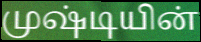
முஷ்டியின்